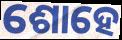
ଶୋହେ